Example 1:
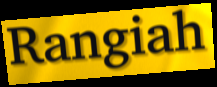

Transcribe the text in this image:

Rangiah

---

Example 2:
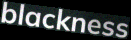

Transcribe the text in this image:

blackness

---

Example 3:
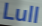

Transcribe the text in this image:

Lull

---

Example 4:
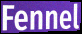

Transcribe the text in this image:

Fennel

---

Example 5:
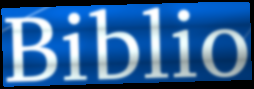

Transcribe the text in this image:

Biblio